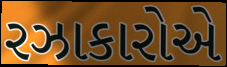
રઝાકારોએ